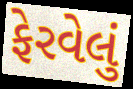
ફેરવેલું